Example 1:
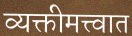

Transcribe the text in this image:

व्यक्तीमत्त्वात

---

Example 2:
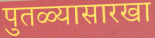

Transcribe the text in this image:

पुतळ्यासारखा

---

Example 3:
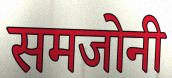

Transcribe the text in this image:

समजोनी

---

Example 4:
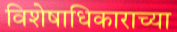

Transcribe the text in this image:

विशेषाधिकाराच्या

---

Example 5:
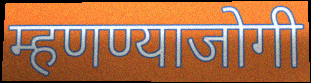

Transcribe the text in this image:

म्हणण्याजोगी